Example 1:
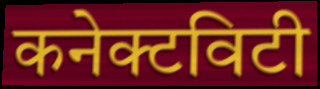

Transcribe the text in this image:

कनेक्टविटी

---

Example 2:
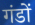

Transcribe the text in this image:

गंडों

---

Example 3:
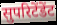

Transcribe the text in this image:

सुपरिटेंडेंट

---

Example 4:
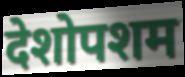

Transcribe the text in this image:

देशोपशम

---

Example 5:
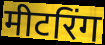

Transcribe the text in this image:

मीटरिंग